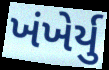
ખંખેર્યુ